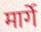
मार्गे